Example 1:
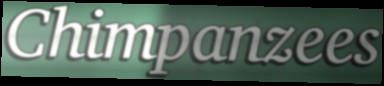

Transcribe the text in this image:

Chimpanzees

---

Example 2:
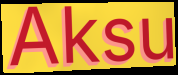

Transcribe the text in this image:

Aksu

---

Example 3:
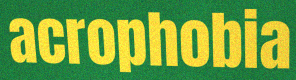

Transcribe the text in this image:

acrophobia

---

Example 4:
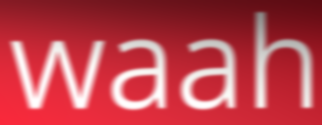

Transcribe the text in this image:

waah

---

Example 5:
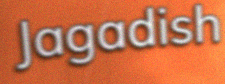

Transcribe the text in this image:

Jagadish